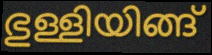
ഭുള്ളിയിങ്ങ്